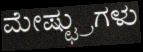
ಮೇಷ್ಟ್ರುಗಳು